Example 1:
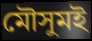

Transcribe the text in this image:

মৌসুমই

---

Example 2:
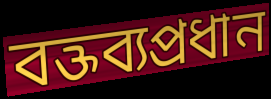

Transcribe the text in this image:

বক্তব্যপ্রধান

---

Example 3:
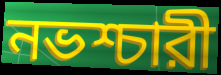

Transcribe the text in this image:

নভশ্চারী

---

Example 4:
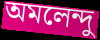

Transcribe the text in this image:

অমলেন্দু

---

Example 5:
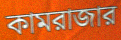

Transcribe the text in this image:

কামরাজার